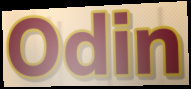
Odin